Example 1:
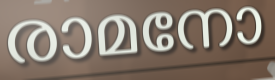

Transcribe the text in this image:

രാമനോ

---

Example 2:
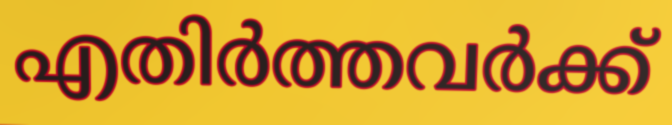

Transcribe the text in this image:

എതിർത്തവർക്ക്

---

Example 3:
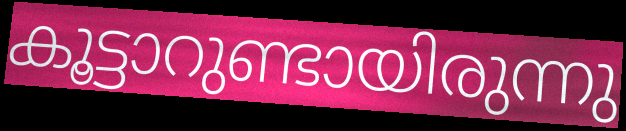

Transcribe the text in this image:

കൂട്ടാറുണ്ടായിരുന്നു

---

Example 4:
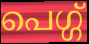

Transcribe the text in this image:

പെഗ്ഗ്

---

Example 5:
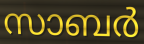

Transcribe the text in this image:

സാബർ